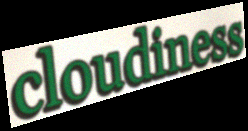
cloudiness